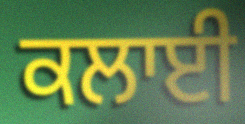
ਕਲਾਈ